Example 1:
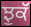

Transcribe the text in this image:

ਝੁਕੱ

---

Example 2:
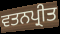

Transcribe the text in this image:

ਵਤਨਪ੍ਰੀਤ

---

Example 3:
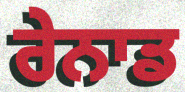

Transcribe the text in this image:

ਰੇਨਾਡ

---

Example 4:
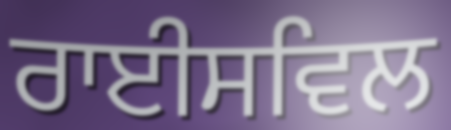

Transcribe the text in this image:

ਰਾਈਸਵਿਲ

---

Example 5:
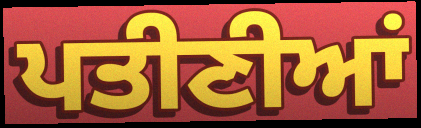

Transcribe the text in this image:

ਪਤੀਣੀਆਂ